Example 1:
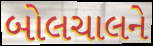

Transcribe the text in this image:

બોલચાલને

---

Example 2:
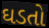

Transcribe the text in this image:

ઘડતો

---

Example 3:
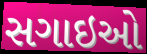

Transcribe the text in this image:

સગાઇઓ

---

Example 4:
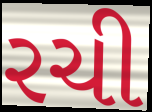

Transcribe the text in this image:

રચી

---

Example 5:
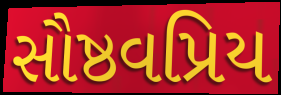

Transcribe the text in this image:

સૌષ્ઠવપ્રિય